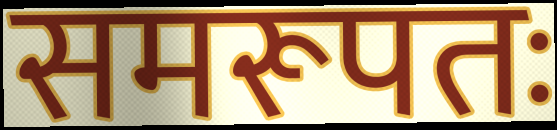
समरूपतः